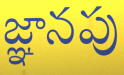
జ్ఞానపు